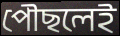
পৌছলেই